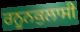
ਰਨੂਨਕੁਲਾਸੀ